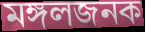
মঙ্গলজনক